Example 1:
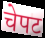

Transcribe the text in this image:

चेपट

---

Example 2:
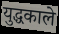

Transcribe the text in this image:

युद्धकाले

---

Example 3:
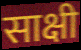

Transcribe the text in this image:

साक्षी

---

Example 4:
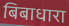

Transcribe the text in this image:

बिबाधारा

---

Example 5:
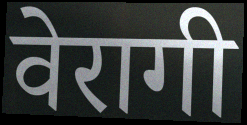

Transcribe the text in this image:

वेरागी